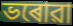
ভৰোৱা